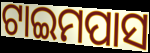
ଟାଇମପାସ